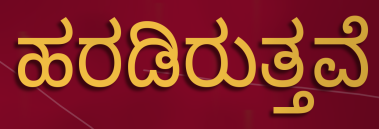
ಹರಡಿರುತ್ತವೆ